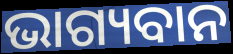
ଭାଗ୍ୟବାନ